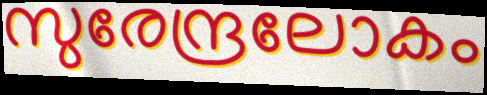
സുരേന്ദ്രലോകം